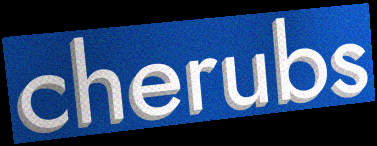
cherubs